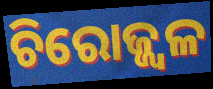
ଚିରୋଜ୍ଜ୍ଵଳ